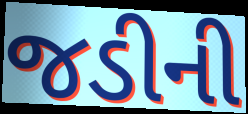
જડીની